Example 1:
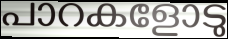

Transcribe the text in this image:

പാറകളോടു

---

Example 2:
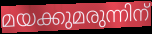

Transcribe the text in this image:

മയക്കുമരുന്നിന്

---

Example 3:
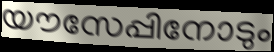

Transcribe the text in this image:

യൗസേപ്പിനോടും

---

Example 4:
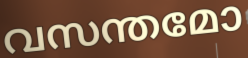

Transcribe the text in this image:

വസന്തമോ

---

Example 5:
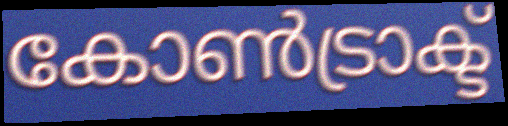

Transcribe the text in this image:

കോൺട്രാക്ട്